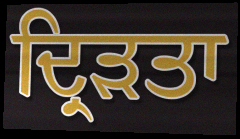
ਦ੍ਰਿੜਤਾ